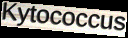
Kytococcus